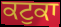
ਕਟੁਕਾ